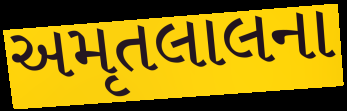
અમૃતલાલના